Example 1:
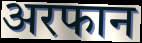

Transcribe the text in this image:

अरफान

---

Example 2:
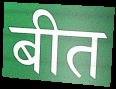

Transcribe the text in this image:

बीत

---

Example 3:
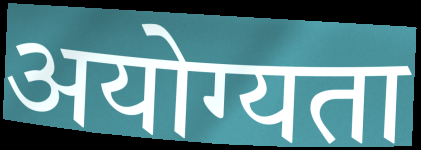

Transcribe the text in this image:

अयोग्यता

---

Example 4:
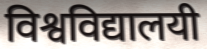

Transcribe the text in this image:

विश्वविद्यालयी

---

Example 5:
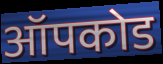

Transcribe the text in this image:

ऑपकोड